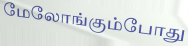
மேலோங்கும்போது